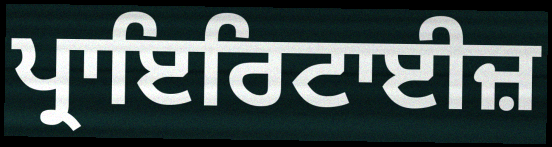
ਪ੍ਰਾਇਰਿਟਾਈਜ਼